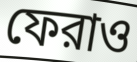
ফেরাও